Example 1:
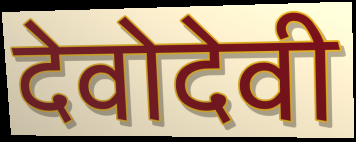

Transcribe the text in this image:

देवोदेवी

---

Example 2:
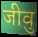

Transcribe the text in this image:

जीवु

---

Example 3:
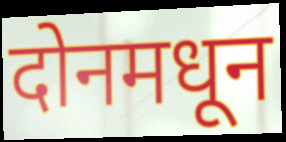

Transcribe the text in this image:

दोनमधून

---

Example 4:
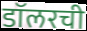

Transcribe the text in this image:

डॉलरची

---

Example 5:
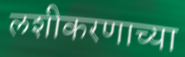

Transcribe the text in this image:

लशीकरणाच्या